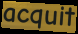
acquit